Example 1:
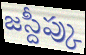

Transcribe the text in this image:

జస్దీప్కు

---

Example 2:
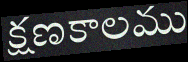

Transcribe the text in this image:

క్షణకాలము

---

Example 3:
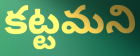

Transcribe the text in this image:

కట్టమని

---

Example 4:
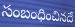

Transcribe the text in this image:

సంబంధించినదే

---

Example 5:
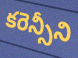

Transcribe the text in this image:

కరెన్సీని